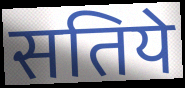
सतिये